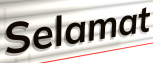
Selamat